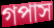
গপাস